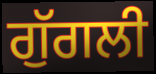
ਗੁੱਗਲੀ